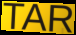
TAR